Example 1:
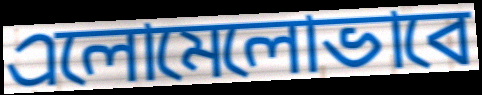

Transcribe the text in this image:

এলোমেলোভাবে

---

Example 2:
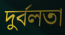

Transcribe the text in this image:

দুর্বলতা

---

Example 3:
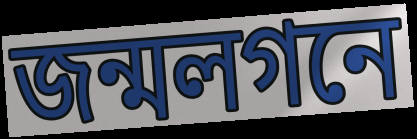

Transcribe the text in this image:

জন্মলগনে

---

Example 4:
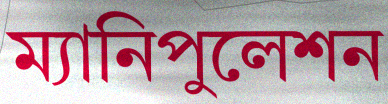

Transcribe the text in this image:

ম্যানিপুলেশন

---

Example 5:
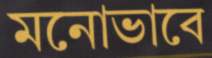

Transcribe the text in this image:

মনোভাবে